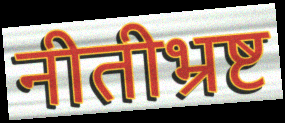
नीतीभ्रष्ट